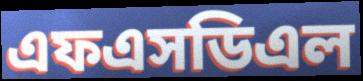
এফএসডিএল